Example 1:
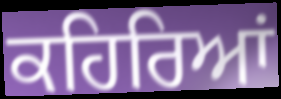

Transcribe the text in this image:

ਕਹਿਰਿਆਂ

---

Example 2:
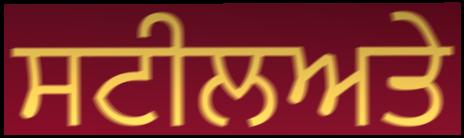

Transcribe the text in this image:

ਸਟੀਲਅਤੇ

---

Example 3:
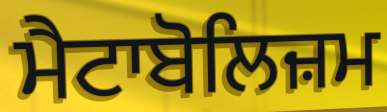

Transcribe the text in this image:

ਮੈਟਾਬੋਲਿਜ਼ਮ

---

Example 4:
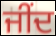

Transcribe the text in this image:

ਜੀਂਦ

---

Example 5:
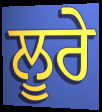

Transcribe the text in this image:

ਲੂਰੇ